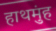
हाथमुंह